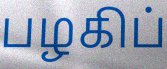
பழகிப்